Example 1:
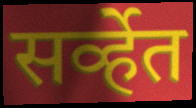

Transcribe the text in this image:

सर्व्हेत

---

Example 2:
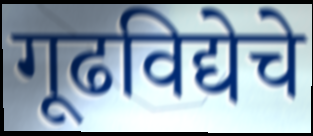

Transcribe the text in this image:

गूढविद्येचे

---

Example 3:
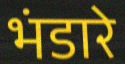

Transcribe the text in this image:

भंडारे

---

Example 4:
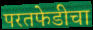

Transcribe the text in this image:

परतफेडीचा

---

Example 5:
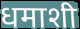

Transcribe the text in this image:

धमाशी